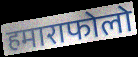
हमाराफोलो